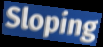
Sloping